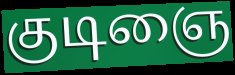
குடிஞை